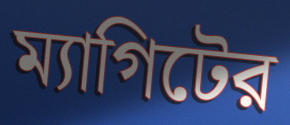
ম্যাগিটের